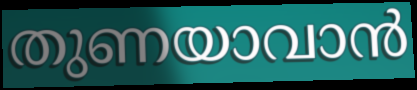
തുണയാവാൻ